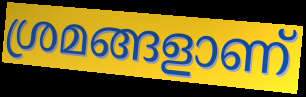
ശ്രമങ്ങളാണ്